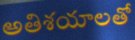
అతిశయాలతో